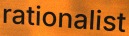
rationalist